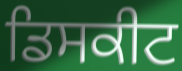
ਡਿਸਕੀਟ